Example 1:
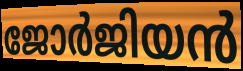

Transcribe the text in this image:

ജോർജിയൻ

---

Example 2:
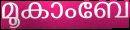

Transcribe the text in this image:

മൂകാംബേ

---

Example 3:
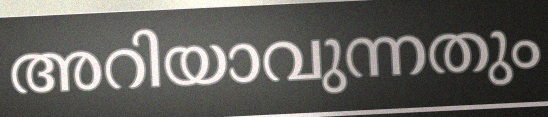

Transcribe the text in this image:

അറിയാവുന്നതും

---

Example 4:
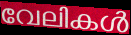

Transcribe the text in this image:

വേലികൾ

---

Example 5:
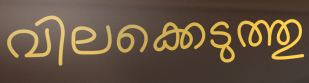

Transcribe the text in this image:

വിലക്കെടുത്തു